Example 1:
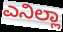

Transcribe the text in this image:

ಎನಿಲ್ಲಾ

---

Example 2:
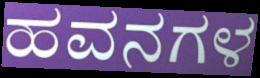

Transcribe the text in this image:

ಹವನಗಳ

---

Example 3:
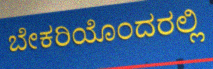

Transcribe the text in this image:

ಬೇಕರಿಯೊಂದರಲ್ಲಿ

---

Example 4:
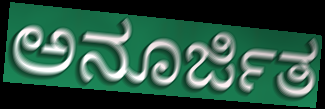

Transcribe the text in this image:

ಅನೂರ್ಜಿತ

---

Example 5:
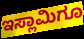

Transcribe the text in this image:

ಇಸ್ಲಾಮಿಗೂ